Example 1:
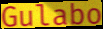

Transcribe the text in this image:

Gulabo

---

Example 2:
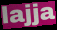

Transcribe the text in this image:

lajja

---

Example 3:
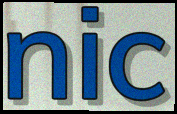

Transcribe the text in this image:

nic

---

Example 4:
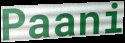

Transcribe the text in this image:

Paani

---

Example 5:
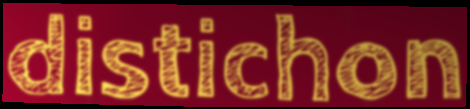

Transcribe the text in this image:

distichon